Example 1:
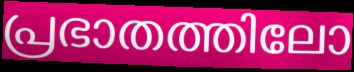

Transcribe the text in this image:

പ്രഭാതത്തിലോ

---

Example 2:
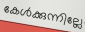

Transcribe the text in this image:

കേൾക്കുന്നില്ലേ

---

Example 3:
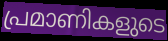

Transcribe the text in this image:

പ്രമാണികളുടെ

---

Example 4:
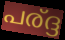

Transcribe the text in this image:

പര്ദ്ദ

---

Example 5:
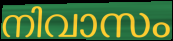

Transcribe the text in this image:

നിവാസം